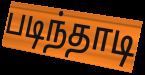
படிந்தாடி